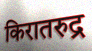
किरातरुद्र